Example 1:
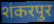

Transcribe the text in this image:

शंकरपुर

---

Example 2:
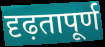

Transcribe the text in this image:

दृढ़तापूर्ण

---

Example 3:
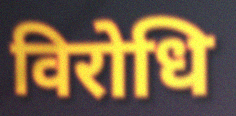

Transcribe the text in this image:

विरोधि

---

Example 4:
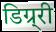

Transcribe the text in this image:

डिग्र्री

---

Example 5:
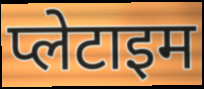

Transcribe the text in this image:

प्लेटाइम